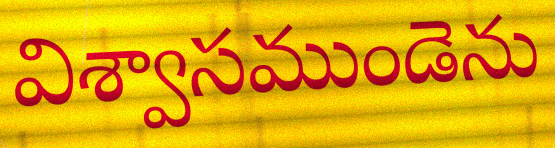
విశ్వాసముండెను